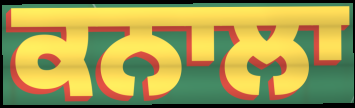
ਕਨਾਲਾ